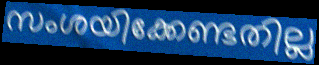
സംശയിക്കേണ്ടതില്ല